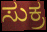
ಸುಕ್ರ